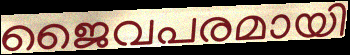
ജൈവപരമായി